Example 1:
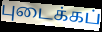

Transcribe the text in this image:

புடைக்கப்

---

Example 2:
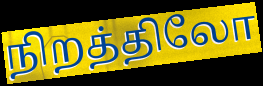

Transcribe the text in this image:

நிறத்திலோ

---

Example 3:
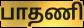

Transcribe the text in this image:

பாதணி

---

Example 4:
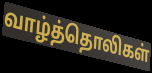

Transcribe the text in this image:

வாழ்த்தொலிகள்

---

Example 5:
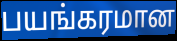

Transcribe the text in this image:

பயங்கரமான